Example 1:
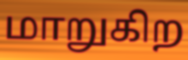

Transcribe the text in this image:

மாறுகிற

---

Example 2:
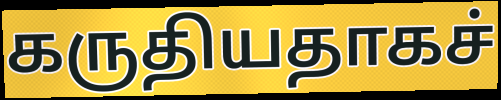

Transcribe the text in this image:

கருதியதாகச்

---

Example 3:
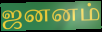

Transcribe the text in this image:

ஜனனம்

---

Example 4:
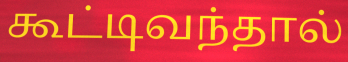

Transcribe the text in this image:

கூட்டிவந்தால்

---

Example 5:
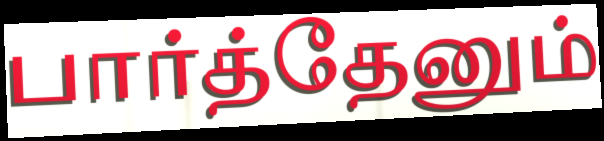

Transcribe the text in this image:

பார்த்தேனும்